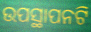
ଉପସ୍ଥାପନଟି